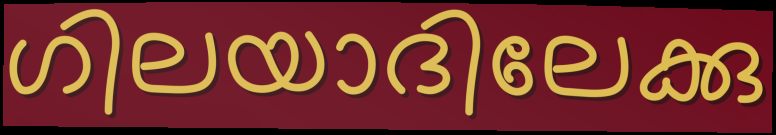
ഗിലയാദിലേക്കു